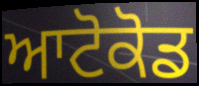
ਆਟੋਕੋਡ